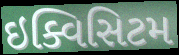
ઇક્વિસિટમ